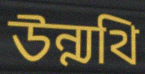
উন্মথি